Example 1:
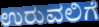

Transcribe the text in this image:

ಉರುವಲಿಗೆ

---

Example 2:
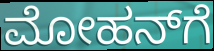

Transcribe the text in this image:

ಮೋಹನ್‌ಗೆ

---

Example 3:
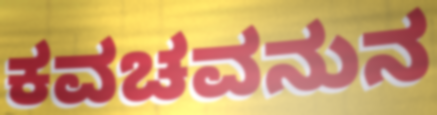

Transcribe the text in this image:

ಕವಚವನುನ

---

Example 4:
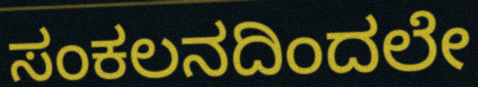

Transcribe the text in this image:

ಸಂಕಲನದಿಂದಲೇ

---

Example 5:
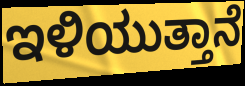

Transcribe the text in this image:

ಇಳಿಯುತ್ತಾನೆ